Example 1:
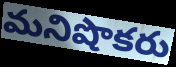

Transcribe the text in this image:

మనిషొకరు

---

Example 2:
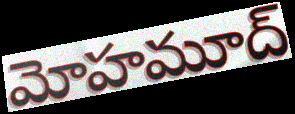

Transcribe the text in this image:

మోహమూద్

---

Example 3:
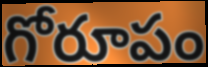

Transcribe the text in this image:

గోరూపం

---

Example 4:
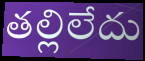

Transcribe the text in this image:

తల్లిలేదు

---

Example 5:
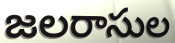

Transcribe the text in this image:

జలరాసుల